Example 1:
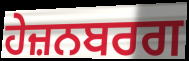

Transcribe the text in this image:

ਹੇਜ਼ਨਬਰਗ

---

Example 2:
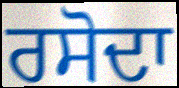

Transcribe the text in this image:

ਰਸੋਦਾ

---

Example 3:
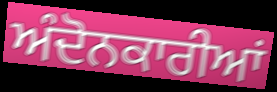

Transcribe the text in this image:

ਅੰਦੋਨਕਾਰੀਆਂ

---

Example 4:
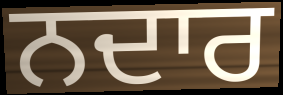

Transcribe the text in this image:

ਨਦਾਰ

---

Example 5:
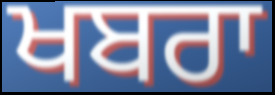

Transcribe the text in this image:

ਖਬਰਾ